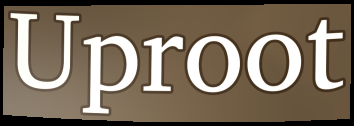
Uproot